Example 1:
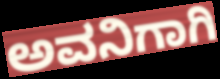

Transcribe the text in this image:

ಅವನಿಗಾಗಿ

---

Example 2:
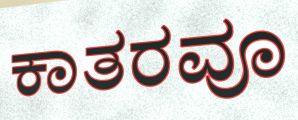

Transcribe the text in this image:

ಕಾತರವೂ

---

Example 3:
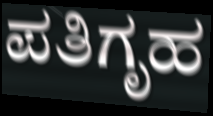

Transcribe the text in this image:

ಪತಿಗೃಹ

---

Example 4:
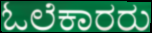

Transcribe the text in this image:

ಓಲೆಕಾರರು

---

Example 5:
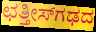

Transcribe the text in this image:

ಛತ್ತೀಸ್‌ಗಢದ